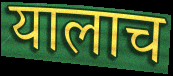
यालाच